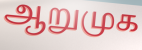
ஆறுமுக